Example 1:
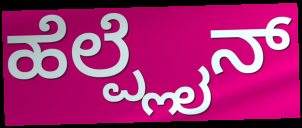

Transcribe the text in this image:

ಹೆಲ್ಪ್ಲೈನ್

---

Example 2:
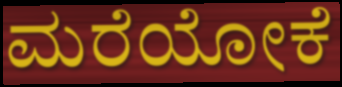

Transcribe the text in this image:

ಮರೆಯೋಕೆ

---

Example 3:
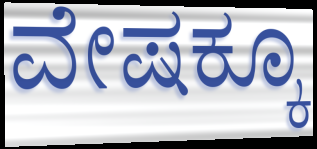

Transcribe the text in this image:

ವೇಷಕ್ಕೂ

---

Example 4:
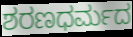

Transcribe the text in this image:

ಶರಣಧರ್ಮದ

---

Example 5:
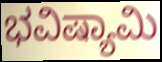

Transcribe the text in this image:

ಭವಿಷ್ಯಾಮಿ